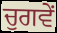
ਚੁਗਵੇਂ